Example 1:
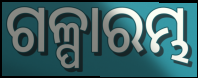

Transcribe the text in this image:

ଗଳ୍ପାରମ୍ଭ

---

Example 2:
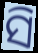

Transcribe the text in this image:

ସି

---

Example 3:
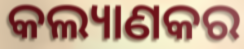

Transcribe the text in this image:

କଲ୍ୟାଣକର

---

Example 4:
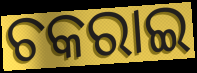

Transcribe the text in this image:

ଚକରାଇ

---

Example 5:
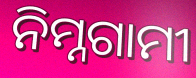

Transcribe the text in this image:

ନିମ୍ନଗାମୀ